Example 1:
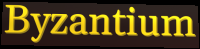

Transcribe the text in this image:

Byzantium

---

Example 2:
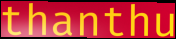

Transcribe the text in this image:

thanthu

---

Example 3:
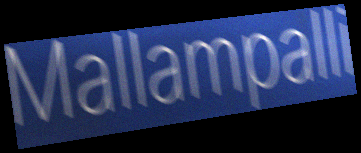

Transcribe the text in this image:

Mallampalli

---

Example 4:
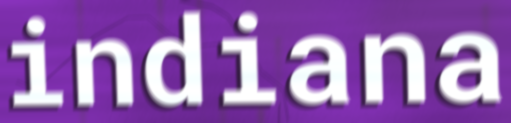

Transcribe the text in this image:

indiana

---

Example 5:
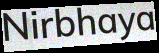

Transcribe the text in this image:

Nirbhaya